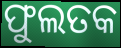
ଫୁଲତକ